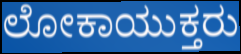
ಲೋಕಾಯುಕ್ತರು